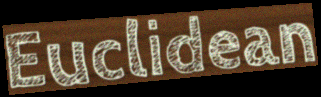
Euclidean